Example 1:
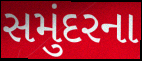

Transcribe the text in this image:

સમુંદરના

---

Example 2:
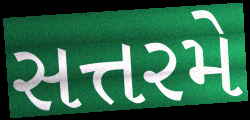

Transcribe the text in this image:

સત્તરમે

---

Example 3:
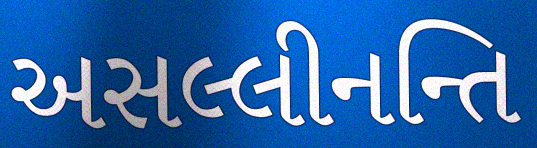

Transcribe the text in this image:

અસલ્લીનન્તિ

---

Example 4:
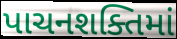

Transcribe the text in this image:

પાચનશક્તિમાં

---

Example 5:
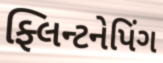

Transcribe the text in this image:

ફ્લિન્ટનેપિંગ